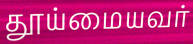
தூய்மையவர்